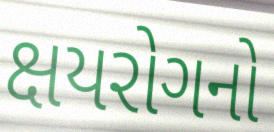
ક્ષયરોગનો